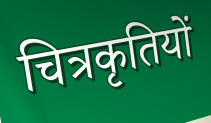
चित्रकृतियों